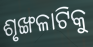
ଶୃଙ୍ଖଳାଟିକୁ